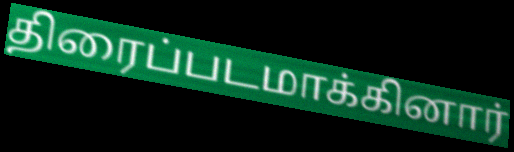
திரைப்படமாக்கினார்